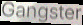
Gangster